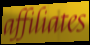
affiliates